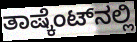
ತಾಷ್ಕೆಂಟ್‌ನಲ್ಲಿ